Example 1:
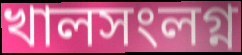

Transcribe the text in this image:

খালসংলগ্ন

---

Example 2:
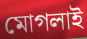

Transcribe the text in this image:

মোগলাই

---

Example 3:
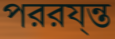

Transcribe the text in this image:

পররয্ন্ত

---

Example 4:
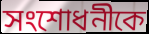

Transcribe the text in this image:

সংশোধনীকে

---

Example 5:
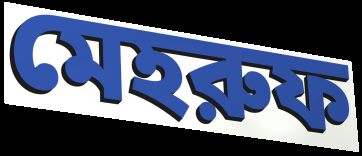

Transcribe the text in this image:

মেহরুফ